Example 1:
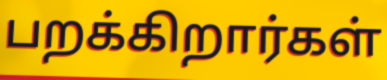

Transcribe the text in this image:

பறக்கிறார்கள்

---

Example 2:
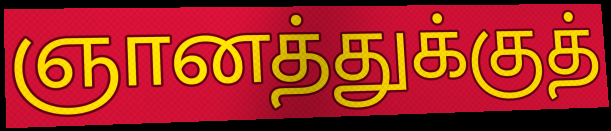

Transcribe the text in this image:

ஞானத்துக்குத்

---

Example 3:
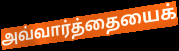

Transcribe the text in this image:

அவ்வார்த்தையைக்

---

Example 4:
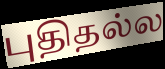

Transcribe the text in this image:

புதிதல்ல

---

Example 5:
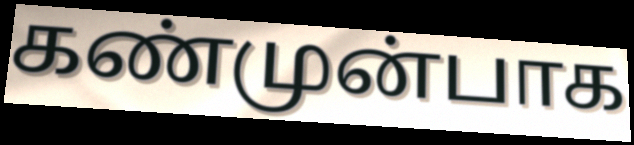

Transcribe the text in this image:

கண்முன்பாக